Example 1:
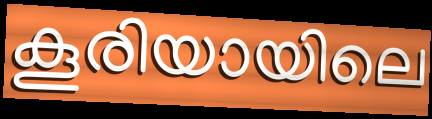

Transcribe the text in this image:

കൂരിയായിലെ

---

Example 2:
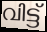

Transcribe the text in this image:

വിട്ട്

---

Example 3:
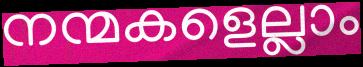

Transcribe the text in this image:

നന്മകളെല്ലാം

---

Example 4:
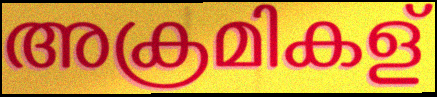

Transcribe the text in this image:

അക്രമികള്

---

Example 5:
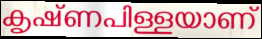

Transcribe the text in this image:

കൃഷ്‌ണപിള്ളയാണ്